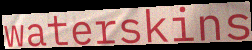
waterskins